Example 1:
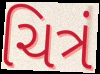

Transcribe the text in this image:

ચિત્રં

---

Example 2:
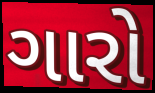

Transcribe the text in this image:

ગારો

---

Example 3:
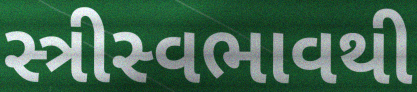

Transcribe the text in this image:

સ્ત્રીસ્વભાવથી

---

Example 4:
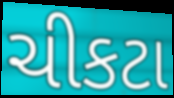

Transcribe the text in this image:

ચીકટા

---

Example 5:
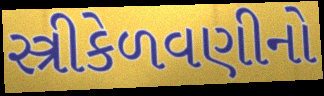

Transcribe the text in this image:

સ્ત્રીકેળવણીનો